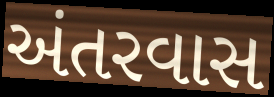
અંતરવાસ